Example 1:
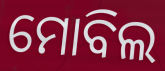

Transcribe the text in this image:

ମୋବିଲ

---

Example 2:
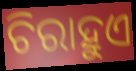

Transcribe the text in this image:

ଚିରାହୁଏ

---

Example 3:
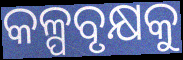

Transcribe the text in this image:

କଳ୍ପବୃକ୍ଷକୁ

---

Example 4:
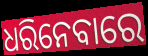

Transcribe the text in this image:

ଧରିନେବାରେ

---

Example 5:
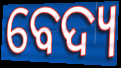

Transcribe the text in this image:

ବେଦ୍ୟ